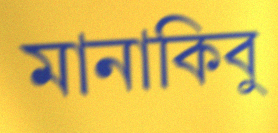
মানাকিবু